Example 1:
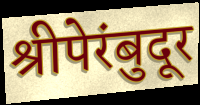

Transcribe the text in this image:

श्रीपेरंबुदूर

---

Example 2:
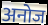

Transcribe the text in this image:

अनोज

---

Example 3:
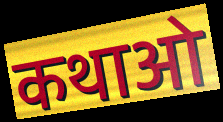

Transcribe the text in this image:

कथाओ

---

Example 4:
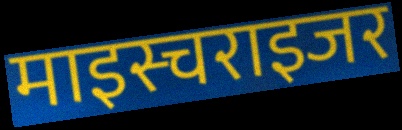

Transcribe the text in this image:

माइस्चराइजर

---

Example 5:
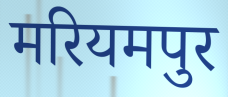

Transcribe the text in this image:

मरियमपुर